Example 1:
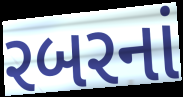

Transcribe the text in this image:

રબરનાં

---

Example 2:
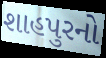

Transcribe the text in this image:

શાહપુરનો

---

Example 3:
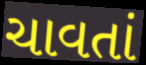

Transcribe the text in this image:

ચાવતાં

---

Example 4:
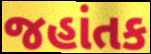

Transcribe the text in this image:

જહાંતક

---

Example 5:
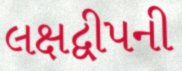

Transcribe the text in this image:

લક્ષદ્વીપની